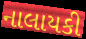
નાલાયકી